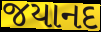
જયાનદ